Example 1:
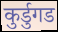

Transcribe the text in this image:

कुर्डुगड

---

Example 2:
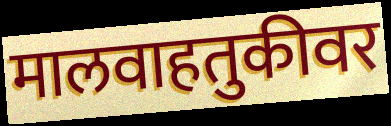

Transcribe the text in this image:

मालवाहतुकीवर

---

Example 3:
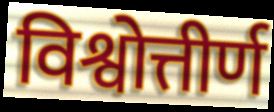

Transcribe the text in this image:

विश्वोत्तीर्ण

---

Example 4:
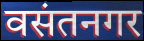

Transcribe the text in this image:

वसंतनगर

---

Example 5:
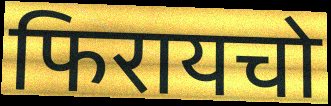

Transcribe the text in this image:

फिरायचो